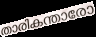
താരികന്താരോ